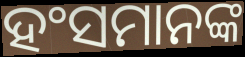
ହଂସମାନଙ୍କ